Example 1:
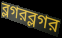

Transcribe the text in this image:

ব্লগরব্লগর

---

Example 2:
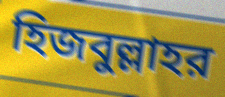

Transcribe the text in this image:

হিজবুল্লাহর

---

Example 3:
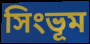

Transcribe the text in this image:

সিংভূম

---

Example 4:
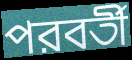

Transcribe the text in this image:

পরবর্তী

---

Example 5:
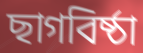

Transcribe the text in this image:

ছাগবিষ্ঠা